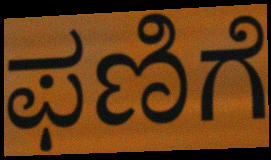
ಫಣಿಗೆ